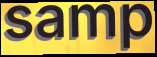
samp